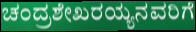
ಚಂದ್ರಶೇಖರಯ್ಯನವರಿಗೆ